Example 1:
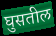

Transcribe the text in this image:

घुसतील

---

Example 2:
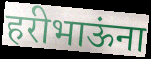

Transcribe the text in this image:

हरीभाऊंना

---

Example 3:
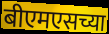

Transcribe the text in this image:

बीएमएसच्या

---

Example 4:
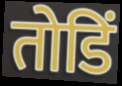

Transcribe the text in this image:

तोडिं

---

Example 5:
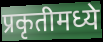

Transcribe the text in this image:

प्रकृतीमध्ये